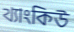
থ্যাংকিউ